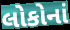
લોકોનાં